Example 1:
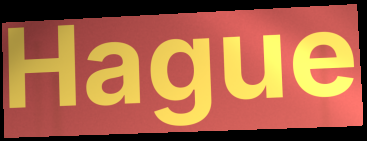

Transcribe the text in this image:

Hague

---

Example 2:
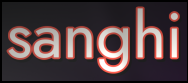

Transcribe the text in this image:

sanghi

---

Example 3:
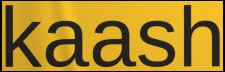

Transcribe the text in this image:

kaash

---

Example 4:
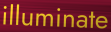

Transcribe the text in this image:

illuminate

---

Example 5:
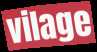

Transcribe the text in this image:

vilage